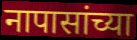
नापासांच्या